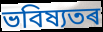
ভবিষ্যতৰ